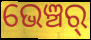
ଭେଞ୍ଚର୍